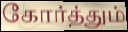
கோர்த்தும்